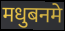
मधुबनमे